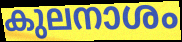
കുലനാശം